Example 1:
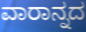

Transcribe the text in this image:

ವಾರಾನ್ನದ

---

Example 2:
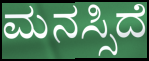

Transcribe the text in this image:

ಮನಸ್ಸಿದೆ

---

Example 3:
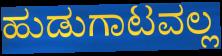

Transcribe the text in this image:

ಹುಡುಗಾಟವಲ್ಲ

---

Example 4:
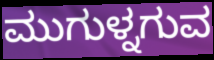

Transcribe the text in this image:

ಮುಗುಳ್ನಗುವ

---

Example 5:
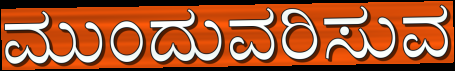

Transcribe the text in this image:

ಮುಂದುವರಿಸುವ